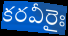
కరవీరైః